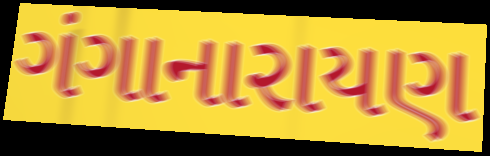
ગંગાનારાયણ